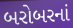
બરોબરનાં